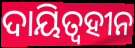
ଦାୟିତ୍ଵହୀନ